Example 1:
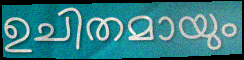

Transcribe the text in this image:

ഉചിതമായും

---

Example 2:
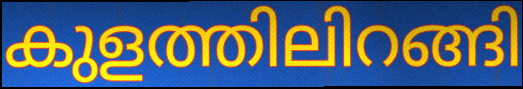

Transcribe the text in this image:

കുളത്തിലിറങ്ങി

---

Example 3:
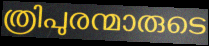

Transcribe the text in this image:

ത്രിപുരന്മാരുടെ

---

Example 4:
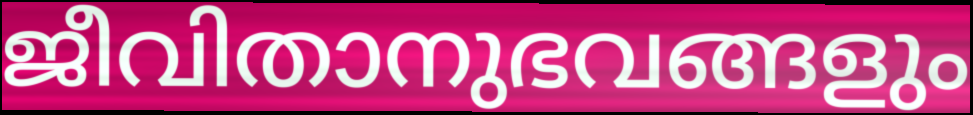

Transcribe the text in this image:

ജീവിതാനുഭവങ്ങളും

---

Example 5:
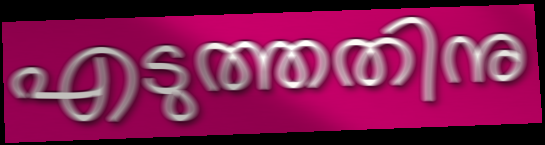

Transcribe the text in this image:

എടുത്തതിനു